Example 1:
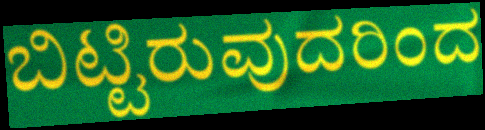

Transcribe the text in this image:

ಬಿಟ್ಟಿರುವುದರಿಂದ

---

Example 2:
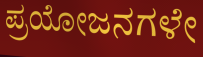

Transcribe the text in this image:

ಪ್ರಯೋಜನಗಳೇ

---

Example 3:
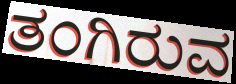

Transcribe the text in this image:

ತಂಗಿರುವ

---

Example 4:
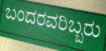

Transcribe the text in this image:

ಬಂದರವರಿಬ್ಬರು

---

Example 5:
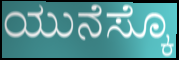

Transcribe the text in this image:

ಯುನೆಸ್ಕೊ